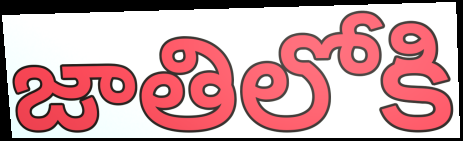
జాతిలోకి